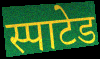
स्पाटेड